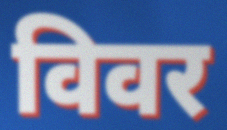
विवर